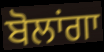
ਬੋਲਾਂਗਾ